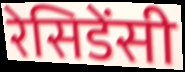
रेसिडेंसी